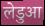
लेडुआ